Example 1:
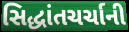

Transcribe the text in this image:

સિદ્ધાંતચર્ચાની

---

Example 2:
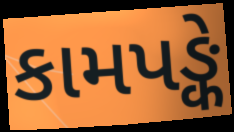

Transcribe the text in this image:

કામપઙ્કે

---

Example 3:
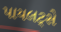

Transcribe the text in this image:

પાયલટ્સે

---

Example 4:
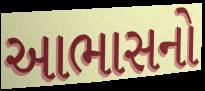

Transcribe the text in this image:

આભાસનો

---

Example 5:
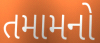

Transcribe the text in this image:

તમામનો